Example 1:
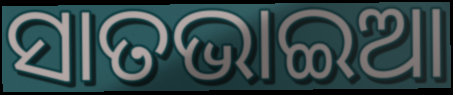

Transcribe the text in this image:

ସାତଭାଇଆ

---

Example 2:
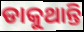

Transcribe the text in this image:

ଡାକୁଥାନ୍ତି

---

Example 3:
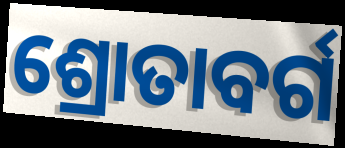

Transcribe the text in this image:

ଶ୍ରୋତାବର୍ଗ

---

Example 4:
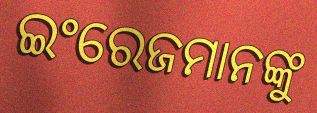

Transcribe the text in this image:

ଇଂରେଜମାନଙ୍କୁ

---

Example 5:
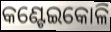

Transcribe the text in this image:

କଣ୍ଟେଇକୋଳି